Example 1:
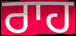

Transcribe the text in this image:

ਰਾਹ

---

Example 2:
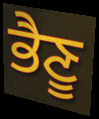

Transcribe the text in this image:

ਭੈਣੂ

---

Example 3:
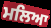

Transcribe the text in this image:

ਮਲਿਆ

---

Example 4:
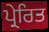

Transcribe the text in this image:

ਪ੍ਰੇਰਿਤ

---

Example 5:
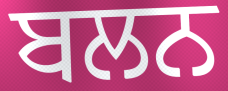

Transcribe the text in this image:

ਬਲਨ